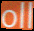
oll